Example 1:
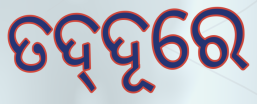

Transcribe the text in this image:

ତଦ୍‍ଦୂରେ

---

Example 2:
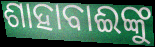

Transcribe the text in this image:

ଶାହାବାଈଙ୍କୁ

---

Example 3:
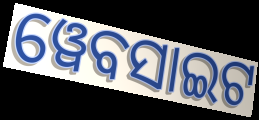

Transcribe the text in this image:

ୱେବସାଇଟ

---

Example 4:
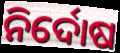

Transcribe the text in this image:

ନିର୍ଦୋଷ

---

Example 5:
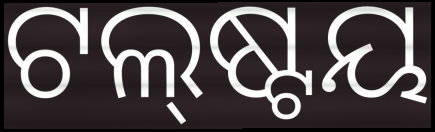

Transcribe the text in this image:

ଟଲ୍‌ଷ୍ଟୟ